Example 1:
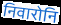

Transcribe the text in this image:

निवारोनि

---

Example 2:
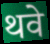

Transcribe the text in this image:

थवे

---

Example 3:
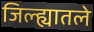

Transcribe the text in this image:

जिल्ह्यातले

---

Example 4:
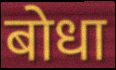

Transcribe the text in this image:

बोधा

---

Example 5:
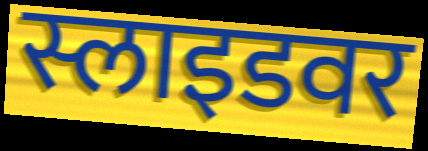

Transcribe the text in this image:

स्‍लाइडवर